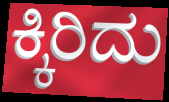
ಕ್ಕಿರಿದು